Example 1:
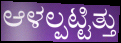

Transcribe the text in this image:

ಆಳಲ್ಪಟ್ಟಿತ್ತು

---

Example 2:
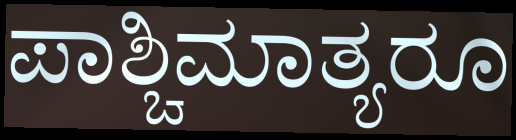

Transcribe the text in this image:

ಪಾಶ್ಚಿಮಾತ್ಯರೂ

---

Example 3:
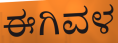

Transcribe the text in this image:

ಈಗಿವಳ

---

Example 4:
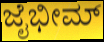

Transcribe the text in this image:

ಜೈಭೀಮ್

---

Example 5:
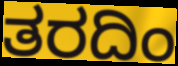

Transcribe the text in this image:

ತರದಿಂ